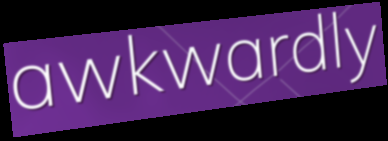
awkwardly